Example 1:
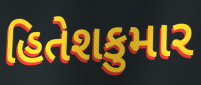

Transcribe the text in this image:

હિતેશકુમાર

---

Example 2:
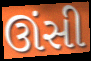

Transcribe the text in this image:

ઊંસી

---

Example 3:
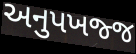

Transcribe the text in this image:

અનુપખજ્જ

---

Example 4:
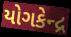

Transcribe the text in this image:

યોગકેન્દ્ર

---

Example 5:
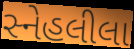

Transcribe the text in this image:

સ્નેહલીલા